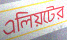
এলিয়টের